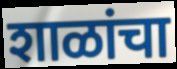
शाळांचा